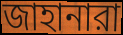
জাহানারা